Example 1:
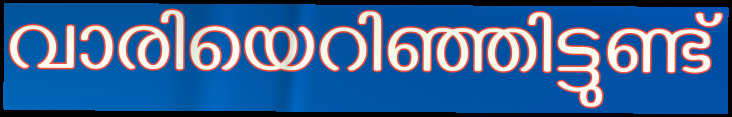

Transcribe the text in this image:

വാരിയെറിഞ്ഞിട്ടുണ്ട്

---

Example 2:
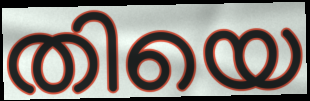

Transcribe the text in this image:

തിയെ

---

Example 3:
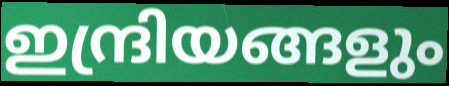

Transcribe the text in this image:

ഇന്ദ്രിയങ്ങളും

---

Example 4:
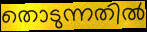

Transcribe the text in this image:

തൊടുന്നതിൽ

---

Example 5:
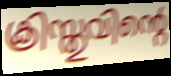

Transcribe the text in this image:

ക്രിസ്തുവിന്റെ